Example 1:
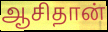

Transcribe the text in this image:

ஆசிதான்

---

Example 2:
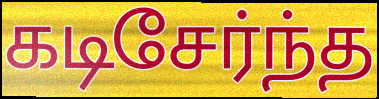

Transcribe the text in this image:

கடிசேர்ந்த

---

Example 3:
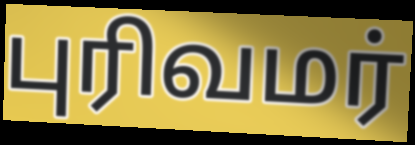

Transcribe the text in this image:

புரிவமர்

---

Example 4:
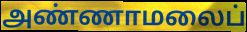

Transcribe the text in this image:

அண்ணாமலைப்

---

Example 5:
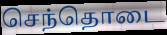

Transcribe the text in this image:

செந்தொடை